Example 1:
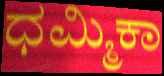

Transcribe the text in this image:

ಧಮ್ಮಿಕಾ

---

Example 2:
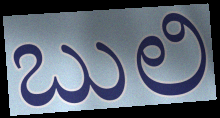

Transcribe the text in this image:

ಬುಲಿ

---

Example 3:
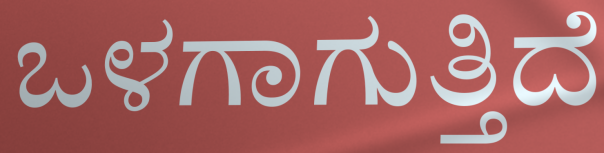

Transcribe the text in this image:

ಒಳಗಾಗುತ್ತಿದೆ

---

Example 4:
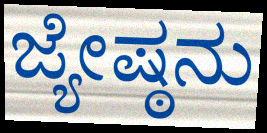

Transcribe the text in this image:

ಜ್ಯೇಷ್ಠನು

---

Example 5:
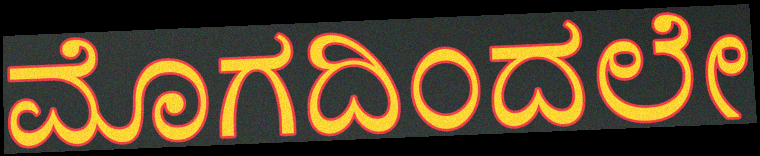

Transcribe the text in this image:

ಮೊಗದಿಂದಲೇ